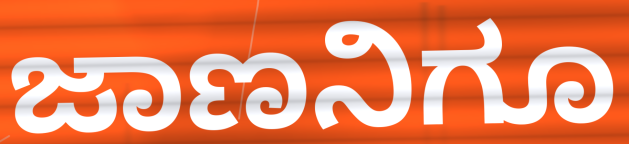
ಜಾಣನಿಗೂ